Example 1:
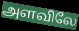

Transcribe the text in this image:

அளவிலே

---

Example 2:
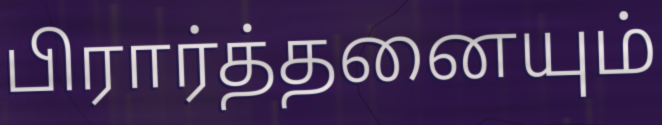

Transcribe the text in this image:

பிரார்த்தனையும்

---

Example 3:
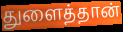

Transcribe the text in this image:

துளைத்தான்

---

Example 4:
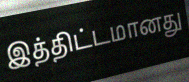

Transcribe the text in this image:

இத்திட்டமானது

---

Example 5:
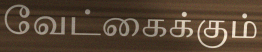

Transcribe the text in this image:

வேட்கைக்கும்